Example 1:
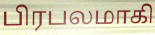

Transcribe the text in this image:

பிரபலமாகி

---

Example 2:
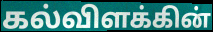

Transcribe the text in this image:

கல்விளக்கின்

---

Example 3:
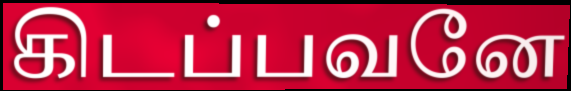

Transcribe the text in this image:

கிடப்பவனே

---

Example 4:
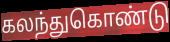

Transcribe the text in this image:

கலந்துகொண்டு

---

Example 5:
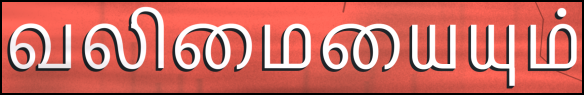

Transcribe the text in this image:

வலிமையையும்